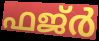
ഫജ്ർ